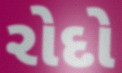
રોદો